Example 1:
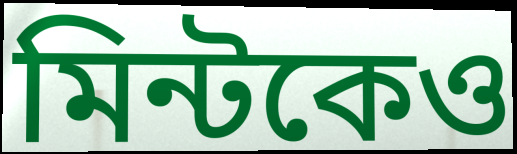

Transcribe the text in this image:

মিন্টকেও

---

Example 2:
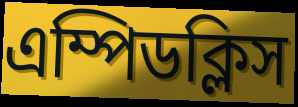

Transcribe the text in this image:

এম্পিডক্লিস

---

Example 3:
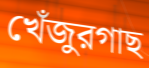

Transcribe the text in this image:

খেঁজুরগাছ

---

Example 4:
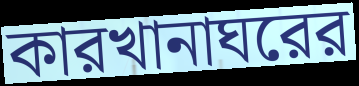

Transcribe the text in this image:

কারখানাঘরের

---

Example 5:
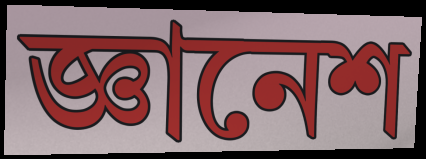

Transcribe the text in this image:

জ্ঞানেশ